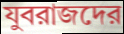
যুবরাজদের